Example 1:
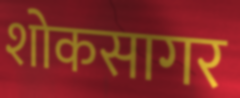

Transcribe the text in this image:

शोकसागर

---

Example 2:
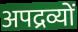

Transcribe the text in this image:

अपद्रव्यों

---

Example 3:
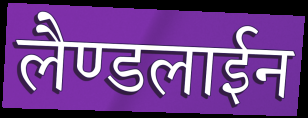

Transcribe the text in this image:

लैण्डलाईन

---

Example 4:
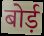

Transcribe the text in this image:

बोर्ड़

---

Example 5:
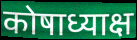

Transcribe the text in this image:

कोषाध्याक्ष